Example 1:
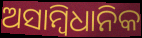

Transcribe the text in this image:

ଅସାମ୍ୱିଧାନିକ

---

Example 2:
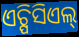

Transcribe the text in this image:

ଏଚ୍ପିସିଏଲ୍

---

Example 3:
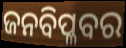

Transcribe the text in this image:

ଜନବିପ୍ଳବର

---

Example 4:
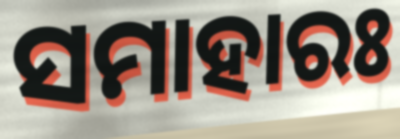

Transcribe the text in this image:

ସମାହାରଃ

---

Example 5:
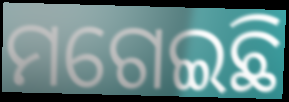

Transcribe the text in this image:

ମଗେଇଛି